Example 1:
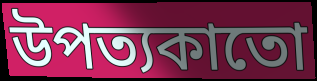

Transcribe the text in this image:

উপত্যকাতো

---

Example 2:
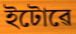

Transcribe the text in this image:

ইটোৱে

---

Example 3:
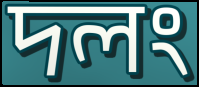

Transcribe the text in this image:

দলং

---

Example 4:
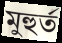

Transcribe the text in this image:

মুহুৰ্ত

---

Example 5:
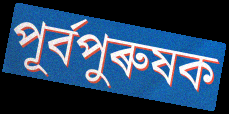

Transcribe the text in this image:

পূৰ্বপুৰুষক